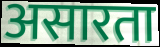
असारता